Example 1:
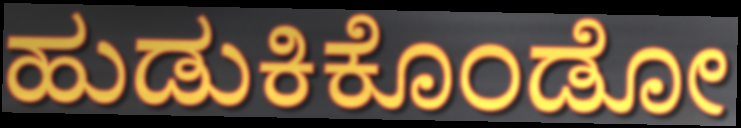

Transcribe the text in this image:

ಹುಡುಕಿಕೊಂಡೋ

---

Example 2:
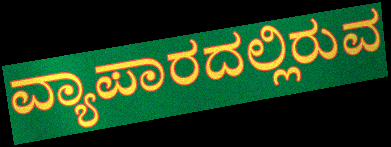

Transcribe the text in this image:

ವ್ಯಾಪಾರದಲ್ಲಿರುವ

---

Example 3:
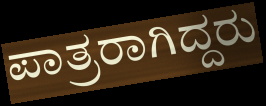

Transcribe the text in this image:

ಪಾತ್ರರಾಗಿದ್ದರು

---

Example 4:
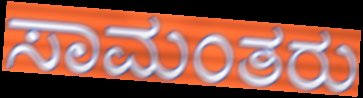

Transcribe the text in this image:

ಸಾಮಂತರು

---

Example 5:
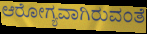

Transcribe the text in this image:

ಆರೋಗ್ಯವಾಗಿರುವಂತೆ